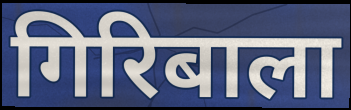
गिरिबाला